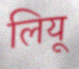
लियू